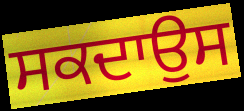
ਸਕਦਾਉਸ